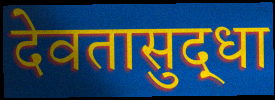
देवतासुद्धा